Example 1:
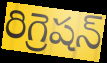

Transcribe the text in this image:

రిగ్రెషన్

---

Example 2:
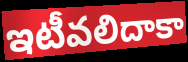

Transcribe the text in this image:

ఇటీవలిదాకా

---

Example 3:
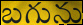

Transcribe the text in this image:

బగును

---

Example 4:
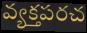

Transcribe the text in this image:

వ్యక్తపరచ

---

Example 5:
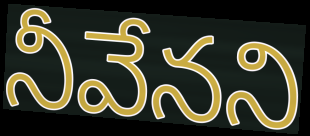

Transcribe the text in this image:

నీవేనని